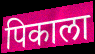
पिकाला